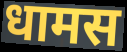
धामस